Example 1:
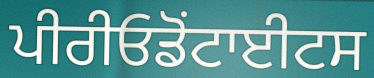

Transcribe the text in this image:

ਪੀਰੀਓਡੋਂਟਾਈਟਸ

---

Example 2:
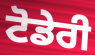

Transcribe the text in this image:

ਟੋਡੇਰੀ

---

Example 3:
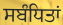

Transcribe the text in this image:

ਸਬੰਧਿਤਾਂ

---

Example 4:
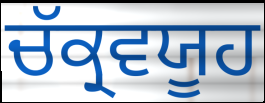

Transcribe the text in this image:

ਚੱਕ੍ਰਵਯੂਹ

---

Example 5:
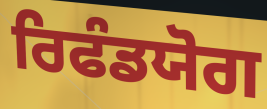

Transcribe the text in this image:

ਰਿਫੰਡਯੋਗ